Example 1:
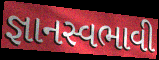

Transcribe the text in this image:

જ્ઞાનસ્વભાવી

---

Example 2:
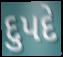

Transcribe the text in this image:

દુપદે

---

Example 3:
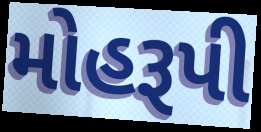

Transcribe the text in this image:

મોહરૂપી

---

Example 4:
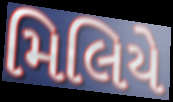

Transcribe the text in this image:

મિલિયે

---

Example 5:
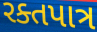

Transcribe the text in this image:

રક્તપાત્ર